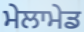
ਮੇਲਾਮੇਡ